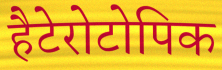
हैटेरोटोपिक